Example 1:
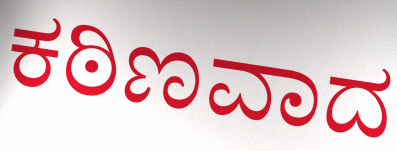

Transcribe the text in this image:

ಕಠಿಣವಾದ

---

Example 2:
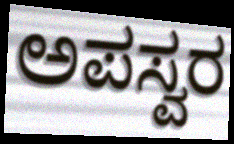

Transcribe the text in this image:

ಅಪಸ್ವರ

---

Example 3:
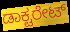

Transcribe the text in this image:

ಡಾಕ್ಟರೇಟ್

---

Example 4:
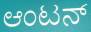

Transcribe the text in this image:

ಆಂಟನ್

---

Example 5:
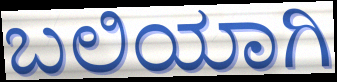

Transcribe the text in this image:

ಬಲಿಯಾಗಿ